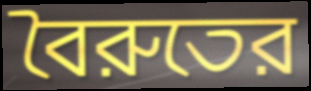
বৈরুতের